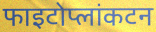
फाइटोप्लांकटन